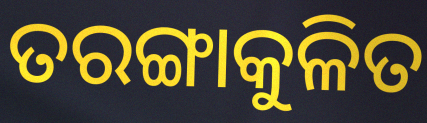
ତରଙ୍ଗାକୁଳିତ